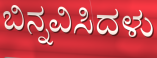
ಬಿನ್ನವಿಸಿದಳು